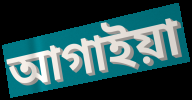
আগাইয়া